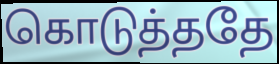
கொடுத்ததே